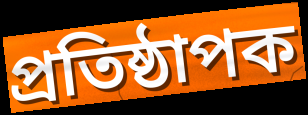
প্ৰতিষ্ঠাপক